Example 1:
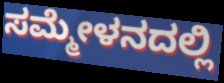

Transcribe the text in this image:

ಸಮ್ಮೇಳನದಲ್ಲಿ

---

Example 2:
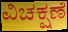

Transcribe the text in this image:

ವಿಚಕ್ಷಣೆ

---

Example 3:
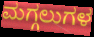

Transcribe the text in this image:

ಮಗ್ಗಲುಗಳ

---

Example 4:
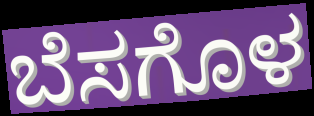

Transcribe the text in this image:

ಬೆಸಗೊಳ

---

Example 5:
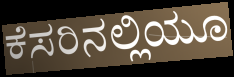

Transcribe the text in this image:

ಕೆಸರಿನಲ್ಲಿಯೂ